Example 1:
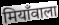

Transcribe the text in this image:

मियाँवाला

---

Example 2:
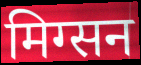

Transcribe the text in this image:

मिग्सन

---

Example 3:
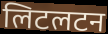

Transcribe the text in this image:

लिटलटन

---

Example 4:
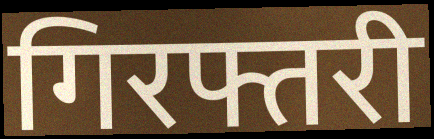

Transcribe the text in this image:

गिरफ्तरी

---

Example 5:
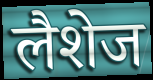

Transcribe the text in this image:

लैशेज